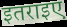
इतराइए